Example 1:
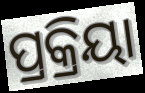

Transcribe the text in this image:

ପ୍ରକ୍ରିୟା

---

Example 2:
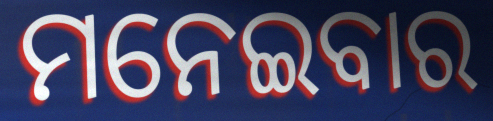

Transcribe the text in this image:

ମନେଇବାର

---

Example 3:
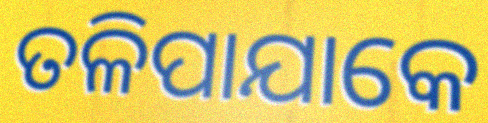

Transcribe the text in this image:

ତଳିପାଯାକେ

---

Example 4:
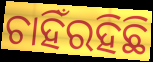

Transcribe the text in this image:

ଚାହିଁରହିଛି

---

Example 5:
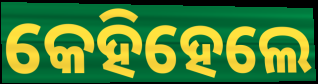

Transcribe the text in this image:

କେହିହେଲେ